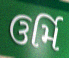
ઉર્મિ